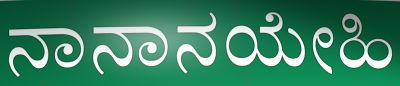
ನಾನಾನಯೇಹಿ